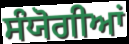
ਸੰਯੋਗੀਆਂ